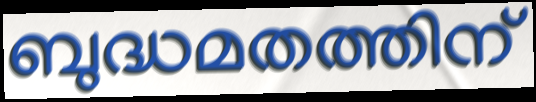
ബുദ്ധമതത്തിന്